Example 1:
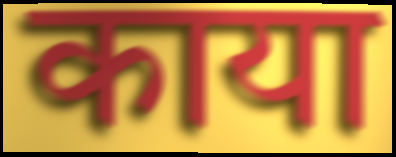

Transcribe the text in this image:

काया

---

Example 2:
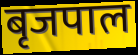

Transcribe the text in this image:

बृजपाल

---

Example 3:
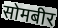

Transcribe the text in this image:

सोमबीर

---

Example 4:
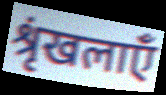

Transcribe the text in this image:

श्रृंखलाएँ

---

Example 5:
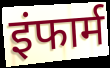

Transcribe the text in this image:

इंफार्म